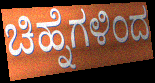
ಚಿಹ್ನೆಗಳಿಂದ